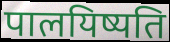
पालयिष्यति